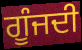
ਗੂੰਜਦੀ